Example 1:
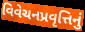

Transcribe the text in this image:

વિવેચનપ્રવૃત્તિનું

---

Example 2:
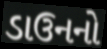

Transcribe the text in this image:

ડાઉનનો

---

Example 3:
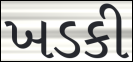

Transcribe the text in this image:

ખડકી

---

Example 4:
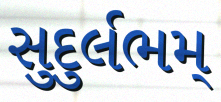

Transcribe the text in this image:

સુદુર્લભમ્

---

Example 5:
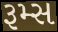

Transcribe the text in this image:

રૂમ્સ